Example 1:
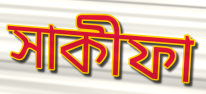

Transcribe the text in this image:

সাকীফা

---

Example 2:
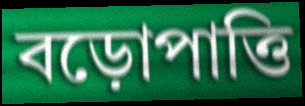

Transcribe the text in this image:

বড়োপাত্তি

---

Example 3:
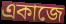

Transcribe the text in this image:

একাজে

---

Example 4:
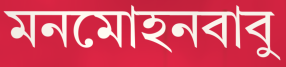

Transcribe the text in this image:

মনমোহনবাবু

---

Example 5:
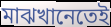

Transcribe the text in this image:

মাঝখানেতেই